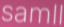
samll